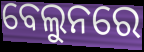
ବେଲୁନରେ